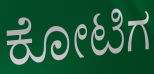
ಕೋಟಿಗ